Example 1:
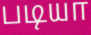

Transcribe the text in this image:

படியா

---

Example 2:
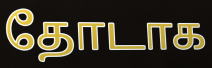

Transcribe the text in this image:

தோடாக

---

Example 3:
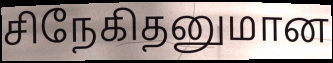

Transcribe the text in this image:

சிநேகிதனுமான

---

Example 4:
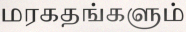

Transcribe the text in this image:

மரகதங்களும்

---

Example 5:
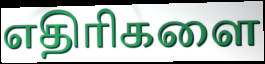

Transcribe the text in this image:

எதிரிகளை